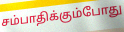
சம்பாதிக்கும்போது